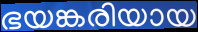
ഭയങ്കരിയായ